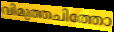
വിമുത്തചിത്തോ